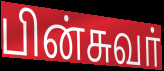
பின்சுவர்